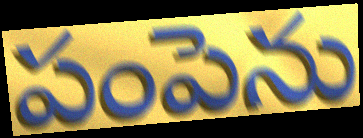
పంపెను